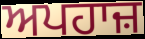
ਅਪਹਾਜ਼